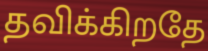
தவிக்கிறதே